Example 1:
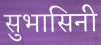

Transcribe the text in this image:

सुभासिनी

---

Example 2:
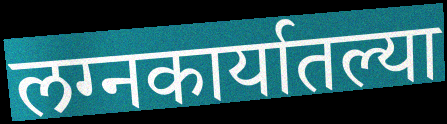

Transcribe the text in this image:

लग्नकार्यातल्या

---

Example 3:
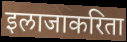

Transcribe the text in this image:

इलाजाकरिता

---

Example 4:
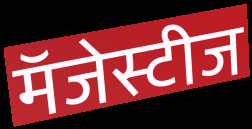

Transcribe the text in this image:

मॅजेस्टीज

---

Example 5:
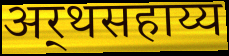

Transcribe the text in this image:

अर्थसहाय्य